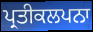
ਪ੍ਰਤੀਕਲਪਨਾ